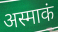
अस्माकं